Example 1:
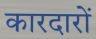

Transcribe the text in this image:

कारदारों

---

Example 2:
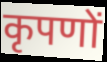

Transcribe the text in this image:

कृपणों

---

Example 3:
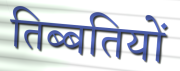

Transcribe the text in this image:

तिब्बतियों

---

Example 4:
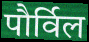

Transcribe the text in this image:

पौर्विल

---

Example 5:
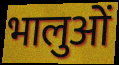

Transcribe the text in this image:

भालुओं